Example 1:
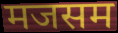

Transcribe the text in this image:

मजसम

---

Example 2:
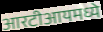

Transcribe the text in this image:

आरटीआयमध्ये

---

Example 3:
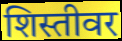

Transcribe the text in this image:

शिस्तीवर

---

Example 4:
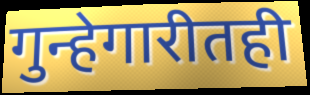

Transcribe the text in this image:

गुन्हेगारीतही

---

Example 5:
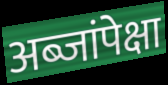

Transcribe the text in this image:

अब्जांपेक्षा